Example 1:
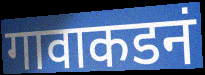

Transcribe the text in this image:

गावाकडनं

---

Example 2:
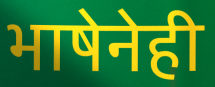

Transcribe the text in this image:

भाषेनेही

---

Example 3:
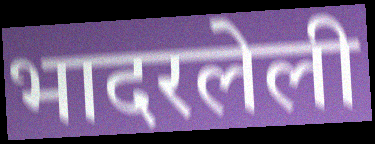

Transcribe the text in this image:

भादरलेली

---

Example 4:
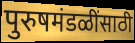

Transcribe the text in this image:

पुरुषमंडळींसाठी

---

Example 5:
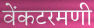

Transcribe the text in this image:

वेंकटरमणी